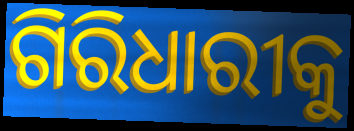
ଗିରିଧାରୀକୁ